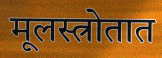
मूलस्त्रोतात